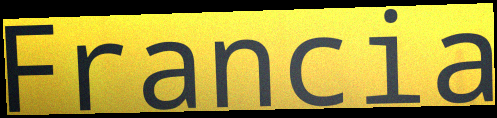
Francia